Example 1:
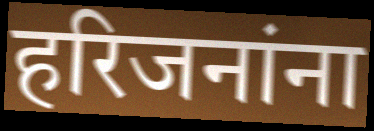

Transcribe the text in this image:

हरिजनांना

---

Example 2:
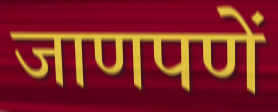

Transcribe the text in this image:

जाणपणें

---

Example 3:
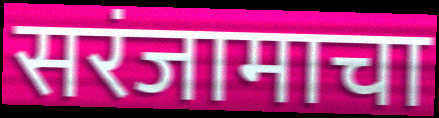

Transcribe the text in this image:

सरंजामाचा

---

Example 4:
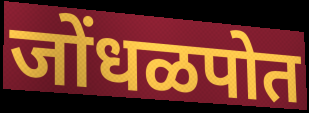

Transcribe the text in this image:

जोंधळपोत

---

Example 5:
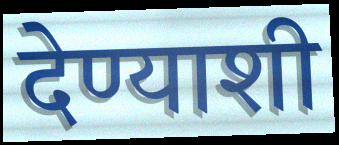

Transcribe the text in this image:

देण्याशी